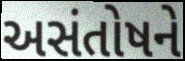
અસંતોષને